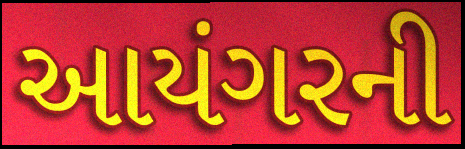
આયંગરની